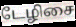
டேழிசை